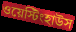
ওয়েস্টিংহাউস